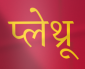
प्लेथ्रू